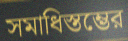
সমাধিস্তম্ভের